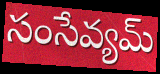
సంసేవ్యమ్